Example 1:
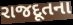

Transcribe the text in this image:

રાજદૂતના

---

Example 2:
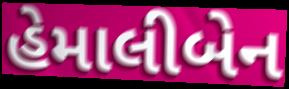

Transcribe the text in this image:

હેમાલીબેન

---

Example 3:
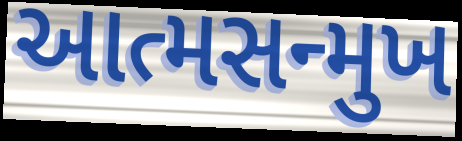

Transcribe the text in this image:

આત્મસન્મુખ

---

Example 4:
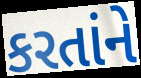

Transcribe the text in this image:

કરતાંને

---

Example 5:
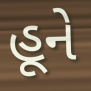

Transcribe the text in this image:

હૂને